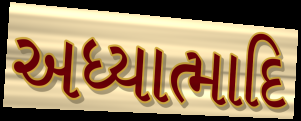
અધ્યાત્માદિ